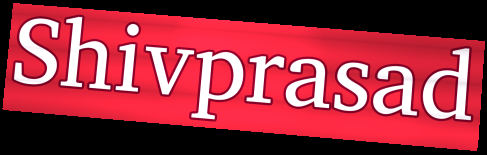
Shivprasad